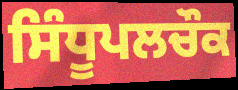
ਸਿੰਧੂਪਲਚੌਕ